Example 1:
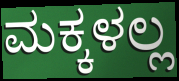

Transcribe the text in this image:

ಮಕ್ಕಳಲ್ಲ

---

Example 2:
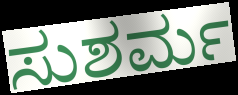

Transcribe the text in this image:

ಸುಶರ್ಮ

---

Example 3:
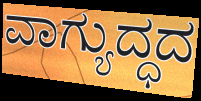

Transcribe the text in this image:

ವಾಗ್ಯುದ್ಧದ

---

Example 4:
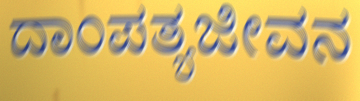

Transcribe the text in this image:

ದಾಂಪತ್ಯಜೀವನ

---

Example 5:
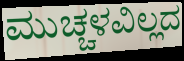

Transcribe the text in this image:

ಮುಚ್ಚಳವಿಲ್ಲದ